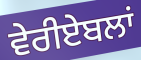
ਵੇਰੀਏਬਲਾਂ